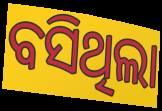
ବସିଥିଲା